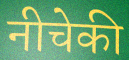
नीचेकी